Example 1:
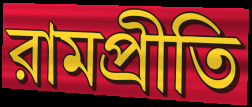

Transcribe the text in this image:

রামপ্রীতি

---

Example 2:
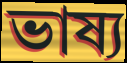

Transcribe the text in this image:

ভাষ্য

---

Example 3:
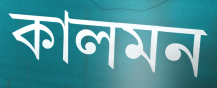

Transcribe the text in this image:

কালমন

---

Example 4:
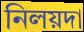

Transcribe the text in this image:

নিলয়দা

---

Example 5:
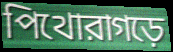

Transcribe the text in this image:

পিথোরাগড়ে